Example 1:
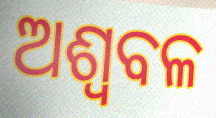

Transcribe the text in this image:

ଅଶ୍ୱବଳ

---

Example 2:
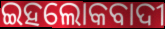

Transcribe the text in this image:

ଇହଲୋକବାଦୀ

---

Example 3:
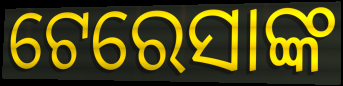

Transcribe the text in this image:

ଟେରେସାଙ୍କ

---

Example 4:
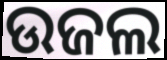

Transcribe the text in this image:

ଉଜଲ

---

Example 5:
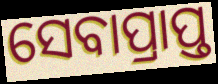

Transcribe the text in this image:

ସେବାପ୍ରାପ୍ତ